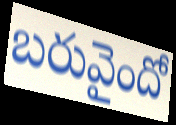
బరువైందో